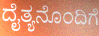
ದೈತ್ಯನೊಂದಿಗೆ